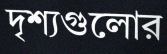
দৃশ্যগুলোর